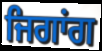
ਜਿਗਾਂਗ